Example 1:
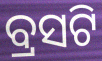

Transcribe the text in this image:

ବ୍ରସଟି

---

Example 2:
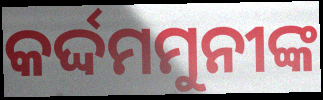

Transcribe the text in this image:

କର୍ଦ୍ଦମମୁନୀଙ୍କ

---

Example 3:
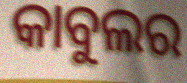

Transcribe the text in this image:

କାବୁଲର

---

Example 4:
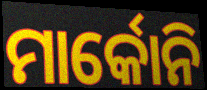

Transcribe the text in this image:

ମାର୍କୋନି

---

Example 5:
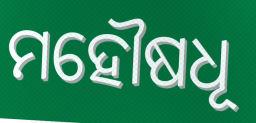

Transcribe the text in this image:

ମହୌଷଧୂ